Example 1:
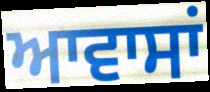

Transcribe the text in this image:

ਆਵਾਸਾਂ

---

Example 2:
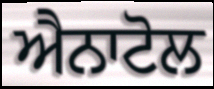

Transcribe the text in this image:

ਐਨਾਟੋਲ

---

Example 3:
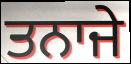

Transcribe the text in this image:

ਤਨਾਜੇ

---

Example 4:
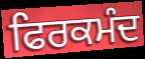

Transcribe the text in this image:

ਫਿਰਕਮੰਦ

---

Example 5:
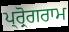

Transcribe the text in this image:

ਪ੍ਰ੍ਰੋਗਰਾਮ